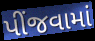
પીંજવામાં